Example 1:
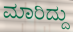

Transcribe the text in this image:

ಮಾರಿದ್ದು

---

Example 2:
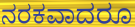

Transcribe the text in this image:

ನರಕವಾದರೂ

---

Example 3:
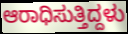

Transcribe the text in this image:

ಆರಾಧಿಸುತ್ತಿದ್ದಳು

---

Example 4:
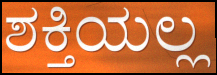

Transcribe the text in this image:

ಶಕ್ತಿಯಲ್ಲ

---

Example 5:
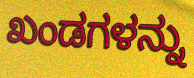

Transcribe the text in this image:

ಖಂಡಗಳನ್ನು